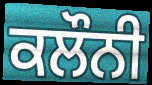
ਕਲੌਨੀ